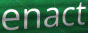
enact